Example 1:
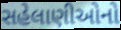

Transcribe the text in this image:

સહેલાણીઓનો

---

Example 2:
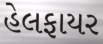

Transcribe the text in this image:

હેલફાયર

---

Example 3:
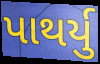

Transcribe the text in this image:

પાથર્યુ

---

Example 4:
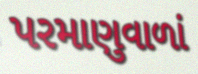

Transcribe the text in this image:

પરમાણુવાળાં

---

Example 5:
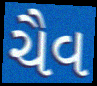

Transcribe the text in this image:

ચૈવ